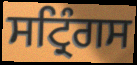
ਸਟ੍ਰਿੰਗਸ